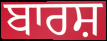
ਬਾਰਸ਼